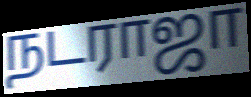
நடராஜா